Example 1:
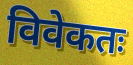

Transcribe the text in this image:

विवेकतः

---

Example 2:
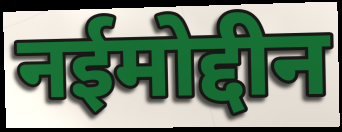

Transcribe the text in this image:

नईमोद्दीन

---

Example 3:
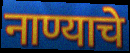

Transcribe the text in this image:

नाण्याचे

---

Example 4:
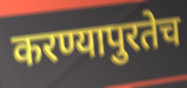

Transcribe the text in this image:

करण्यापुरतेच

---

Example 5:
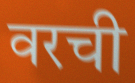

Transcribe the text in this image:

वरची